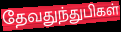
தேவதுந்துபிகள்